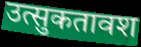
उत्सुकतावश